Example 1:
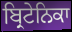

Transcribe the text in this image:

ਬ੍ਰਿਟੇਨਿਕਾ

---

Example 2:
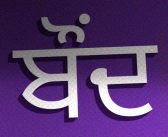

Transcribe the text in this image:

ਬੌਂਦ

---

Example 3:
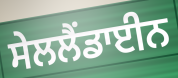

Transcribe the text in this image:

ਸੇਲਲੈਂਡਾਈਨ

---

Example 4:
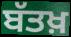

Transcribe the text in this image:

ਬੱਤਖ਼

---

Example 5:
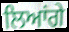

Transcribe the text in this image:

ਲਿਆਂਗੇ